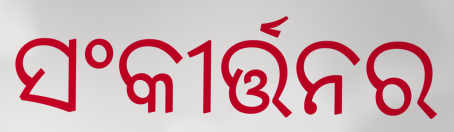
ସଂକୀର୍ତ୍ତନର